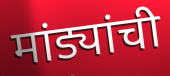
मांड्यांची